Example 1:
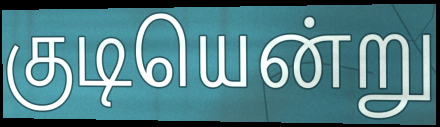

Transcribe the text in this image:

குடியென்று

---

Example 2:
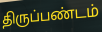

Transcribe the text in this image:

திருப்பண்டம்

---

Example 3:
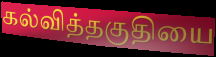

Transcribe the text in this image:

கல்வித்தகுதியை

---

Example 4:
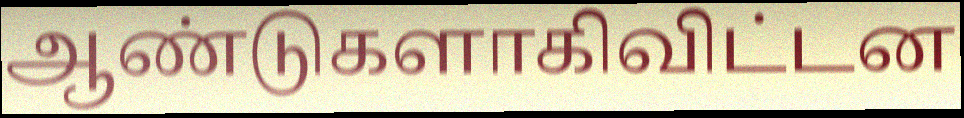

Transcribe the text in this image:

ஆண்டுகளாகிவிட்டன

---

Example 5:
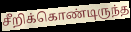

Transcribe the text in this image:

சீறிக்கொண்டிருந்த